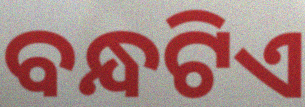
ବନ୍ଧଟିଏ